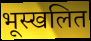
भूस्खलित